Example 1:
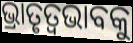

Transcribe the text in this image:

ଭ୍ରାତୃତ୍ୱଭାବକୁ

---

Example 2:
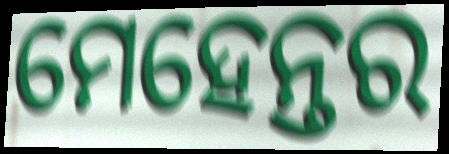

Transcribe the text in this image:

ମେହେନ୍ତର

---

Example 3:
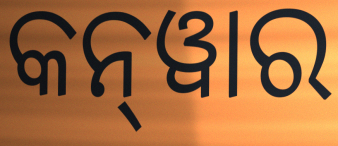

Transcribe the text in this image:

କନ୍‍ୱାର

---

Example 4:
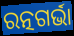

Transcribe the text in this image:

ରତ୍ନଗର୍ଭା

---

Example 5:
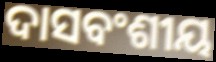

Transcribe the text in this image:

ଦାସବଂଶୀୟ